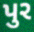
પુર